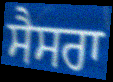
ਸੈਸਰਾ